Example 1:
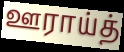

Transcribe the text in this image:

ஊராய்த்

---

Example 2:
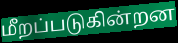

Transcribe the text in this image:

மீறப்படுகின்றன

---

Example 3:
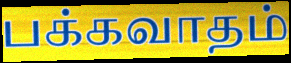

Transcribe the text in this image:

பக்கவாதம்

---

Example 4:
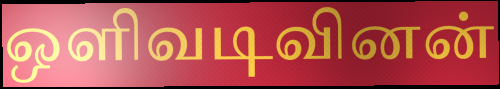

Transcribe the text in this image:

ஒளிவடிவினன்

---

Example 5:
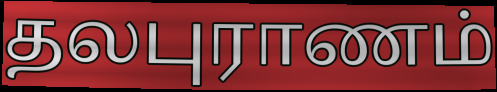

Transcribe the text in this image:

தலபுராணம்